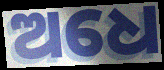
ଅଧେ